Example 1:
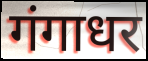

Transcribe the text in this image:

गंगाधर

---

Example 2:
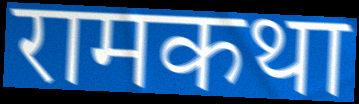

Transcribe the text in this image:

रामकथा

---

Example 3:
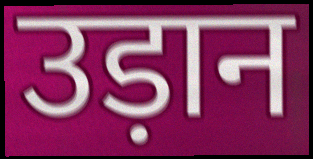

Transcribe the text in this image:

उड़ान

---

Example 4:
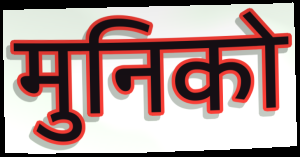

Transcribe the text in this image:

मुनिको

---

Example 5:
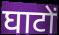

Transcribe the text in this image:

घाटों